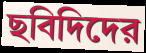
ছবিদিদের